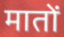
मातों